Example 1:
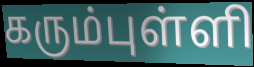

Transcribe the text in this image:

கரும்புள்ளி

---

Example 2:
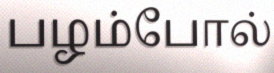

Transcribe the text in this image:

பழம்போல்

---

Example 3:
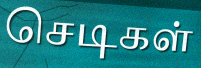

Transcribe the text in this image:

செடிகள்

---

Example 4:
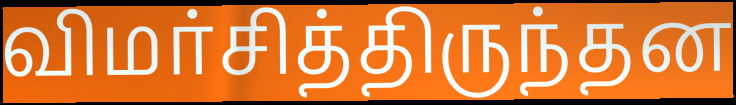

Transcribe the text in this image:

விமர்சித்திருந்தன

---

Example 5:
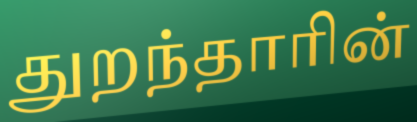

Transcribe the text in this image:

துறந்தாரின்